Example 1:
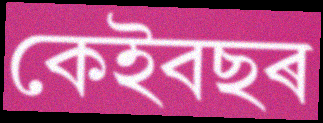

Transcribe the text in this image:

কেইবছৰ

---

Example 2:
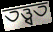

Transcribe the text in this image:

তত্ত্বত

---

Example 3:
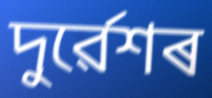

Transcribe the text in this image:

দুৰ্ৱেশৰ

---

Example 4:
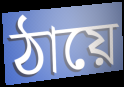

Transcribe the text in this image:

ঠায়ে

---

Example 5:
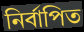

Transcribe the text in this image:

নিৰ্বাপিত